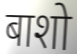
बाशो